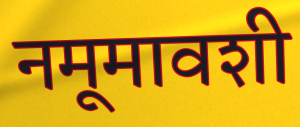
नमूमावशी